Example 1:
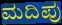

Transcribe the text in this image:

ಮದಿಪು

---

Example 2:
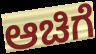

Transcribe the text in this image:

ಆಚಿಗೆ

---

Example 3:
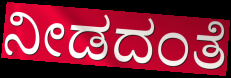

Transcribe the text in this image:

ನೀಡದಂತೆ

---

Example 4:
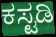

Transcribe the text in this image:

ಕಸ್ಟಡಿ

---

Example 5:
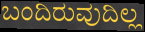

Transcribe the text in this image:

ಬಂದಿರುವುದಿಲ್ಲ